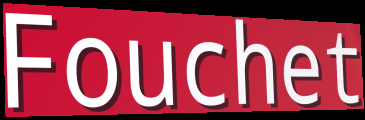
Fouchet